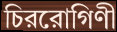
চিররোগিণী